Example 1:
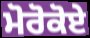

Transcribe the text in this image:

ਮੋਰੋਕੋਏ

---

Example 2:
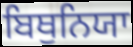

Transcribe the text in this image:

ਬਿਥੁਨਿਯਾ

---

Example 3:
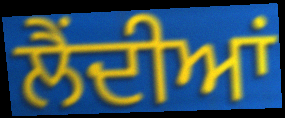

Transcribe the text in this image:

ਲੈਂਦੀਆਂ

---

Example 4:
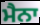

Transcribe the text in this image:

ਮੈਨਾ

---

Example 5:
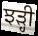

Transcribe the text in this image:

ਝੜ੍ਹੀ